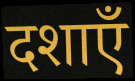
दशाएँ